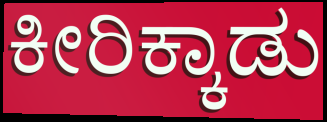
ಕೀರಿಕ್ಕಾಡು